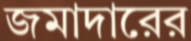
জমাদারের